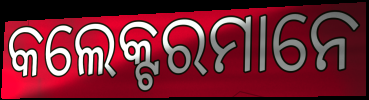
କଲେକ୍ଟରମାନେ